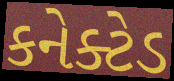
કનેક્ટેડ